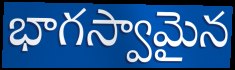
భాగస్వామైన